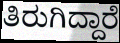
ತಿರುಗಿದ್ದಾರೆ